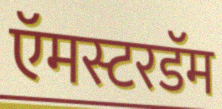
ऍमस्टरडॅम